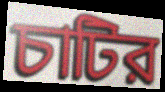
চাটির